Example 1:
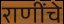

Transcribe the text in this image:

राणींचे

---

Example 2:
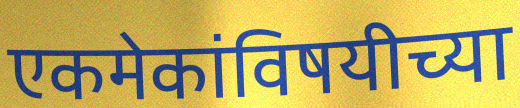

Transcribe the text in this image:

एकमेकांविषयीच्या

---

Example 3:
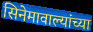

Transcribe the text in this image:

सिनेमावाल्यांच्या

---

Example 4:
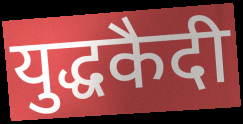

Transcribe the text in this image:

युद्धकैदी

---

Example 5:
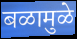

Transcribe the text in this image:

बळामुळे